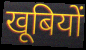
खूबियों